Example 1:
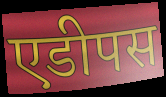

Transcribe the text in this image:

एडीपस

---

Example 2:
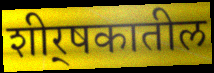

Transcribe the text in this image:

शीर्षकातील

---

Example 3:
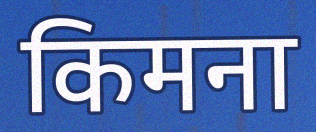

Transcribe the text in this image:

किमना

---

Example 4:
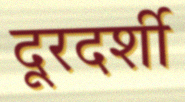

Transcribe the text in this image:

दूरदर्शी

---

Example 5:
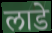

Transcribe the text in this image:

लाडे